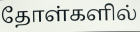
தோள்களில்